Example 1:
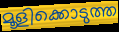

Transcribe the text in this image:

മൂളിക്കൊടുത്ത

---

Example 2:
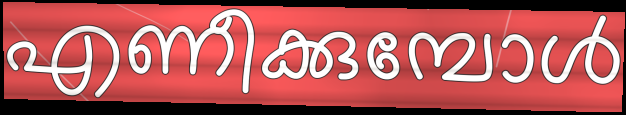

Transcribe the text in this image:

എണീക്കുമ്പോൾ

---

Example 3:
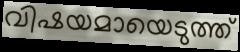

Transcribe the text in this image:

വിഷയമായെടുത്ത്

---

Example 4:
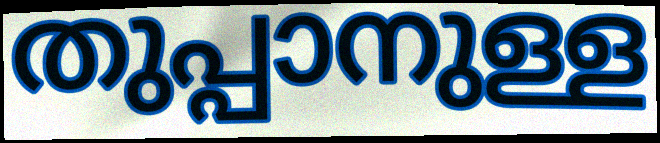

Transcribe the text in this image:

തുപ്പാനുള്ള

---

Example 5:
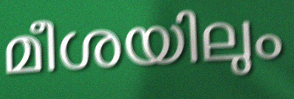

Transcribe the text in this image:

മീശയിലും